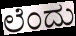
ಲೆಂದು